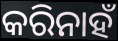
କରିନାହଁ